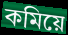
কমিয়ে